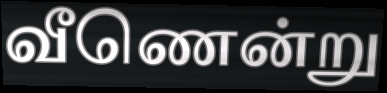
வீணென்று